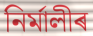
নিৰ্মালীৰ